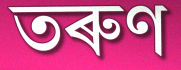
তৰুণ